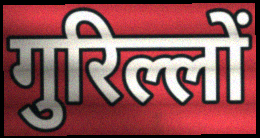
गुरिल्लों